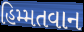
હિમ્મતવાન